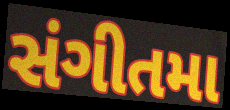
સંગીતમા